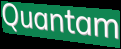
Quantam